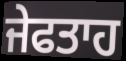
ਜੇਫਤਾਹ